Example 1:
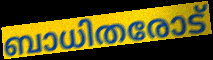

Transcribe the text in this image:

ബാധിതരോട്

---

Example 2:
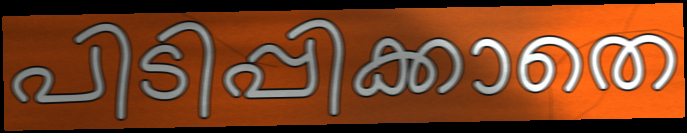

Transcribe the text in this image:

പിടിപ്പിക്കാതെ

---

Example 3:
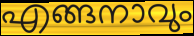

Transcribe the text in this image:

എങ്ങനാവും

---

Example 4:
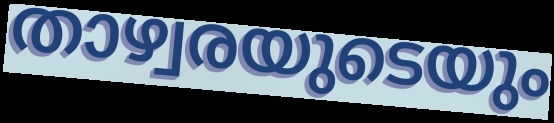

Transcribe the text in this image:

താഴ്വരയുടെയും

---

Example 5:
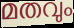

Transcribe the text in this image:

മതവും